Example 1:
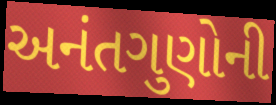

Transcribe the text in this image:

અનંતગુણોની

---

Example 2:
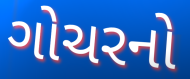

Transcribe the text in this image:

ગોચરનો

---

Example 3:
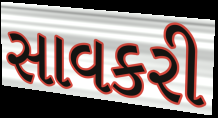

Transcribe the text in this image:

સાવકરી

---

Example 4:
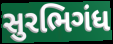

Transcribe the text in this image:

સુરભિગંધ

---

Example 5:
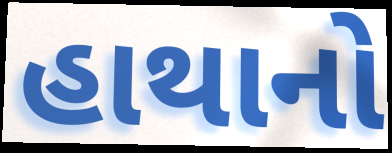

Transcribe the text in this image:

હાથાનો